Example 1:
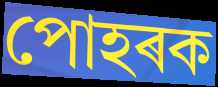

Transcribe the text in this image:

পোহৰক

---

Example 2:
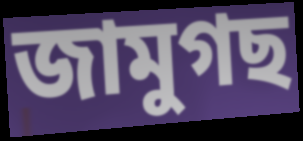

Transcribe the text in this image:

জামুগছ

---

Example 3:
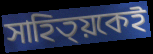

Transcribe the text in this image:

সাহিত্য়কেই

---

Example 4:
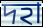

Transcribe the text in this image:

দহা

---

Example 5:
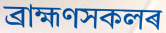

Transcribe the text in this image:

ব্ৰাহ্মণসকলৰ